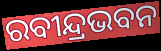
ରବୀନ୍ଦ୍ରଭବନ